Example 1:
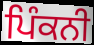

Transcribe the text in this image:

ਪਿੰਕਨੀ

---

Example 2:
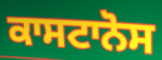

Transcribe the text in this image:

ਕਾਸਟਾਨੋਸ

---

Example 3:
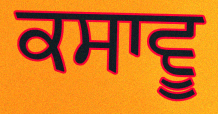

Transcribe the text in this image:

ਕਸਾਵੂ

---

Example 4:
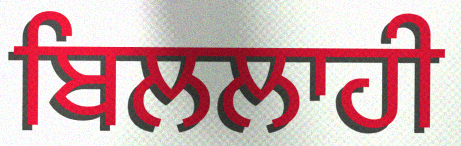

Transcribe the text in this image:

ਬਿਲਲਾਹੀ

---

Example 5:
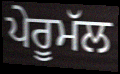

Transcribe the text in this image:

ਪੇਰੂਮੱਲ